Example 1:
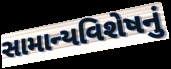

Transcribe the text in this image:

સામાન્યવિશેષનું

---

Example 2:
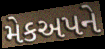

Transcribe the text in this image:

મેકઅપને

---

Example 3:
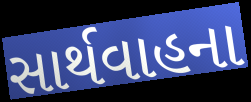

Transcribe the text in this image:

સાર્થવાહના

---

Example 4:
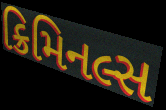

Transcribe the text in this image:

ક્રિમિનલ્સ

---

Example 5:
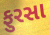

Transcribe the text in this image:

ફુરસા